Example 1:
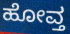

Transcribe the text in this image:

ಹೋವ್ತ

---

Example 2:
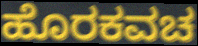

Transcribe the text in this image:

ಹೊರಕವಚ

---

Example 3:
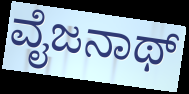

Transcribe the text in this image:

ವೈಜನಾಥ್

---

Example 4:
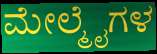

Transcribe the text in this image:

ಮೇಲ್ಮೈಗಳ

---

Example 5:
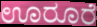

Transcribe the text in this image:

ಊರೂರೆ